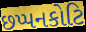
છપ્પનકોટિ